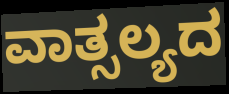
ವಾತ್ಸಲ್ಯದ